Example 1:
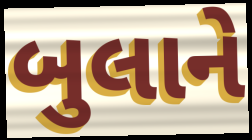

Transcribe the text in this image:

બુલાને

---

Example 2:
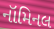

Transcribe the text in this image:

નૉમિનલ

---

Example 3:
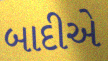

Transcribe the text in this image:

બાદીએ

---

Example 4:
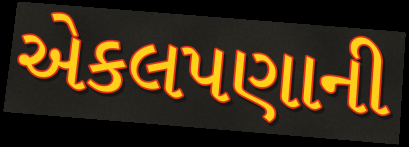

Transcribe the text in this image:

એકલપણાની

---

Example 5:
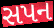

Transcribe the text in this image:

સપન